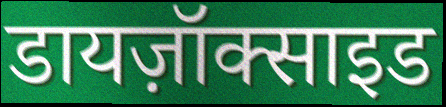
डायज़ॉक्साइड